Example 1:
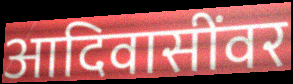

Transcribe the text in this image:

आदिवासींवर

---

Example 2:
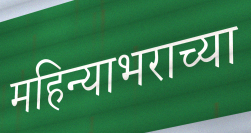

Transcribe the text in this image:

महिन्याभराच्या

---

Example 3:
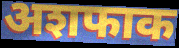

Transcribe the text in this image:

अशफाक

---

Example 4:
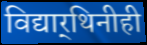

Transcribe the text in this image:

विद्यार्थिनीही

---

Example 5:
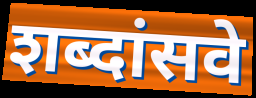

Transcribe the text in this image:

शब्दांसवे